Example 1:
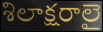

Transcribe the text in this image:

శిలాక్షరాలై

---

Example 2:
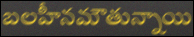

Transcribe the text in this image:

బలహీనమౌతున్నాయి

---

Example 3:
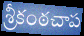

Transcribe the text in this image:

శ్రీకంఠచాప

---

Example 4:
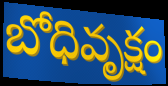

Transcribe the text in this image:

బోధివృక్షం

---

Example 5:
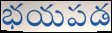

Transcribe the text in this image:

భయపడ